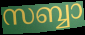
സബ്ബാ